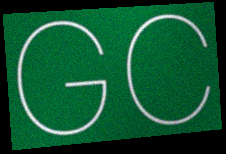
GC